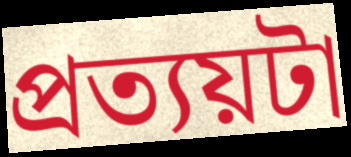
প্রত্যয়টা